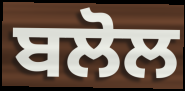
ਬਲੋਲ